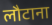
लौटाना